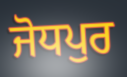
ਜੋਧਪੁਰ